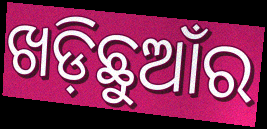
ଖଡ଼ିଛୁଆଁର